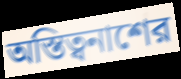
অস্তিত্বনাশের